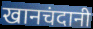
खानचंदानी